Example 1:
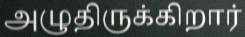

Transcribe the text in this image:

அழுதிருக்கிறார்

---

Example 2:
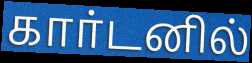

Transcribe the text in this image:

கார்டனில்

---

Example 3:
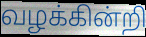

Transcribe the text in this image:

வழக்கின்றி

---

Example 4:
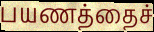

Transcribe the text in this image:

பயணத்தைச்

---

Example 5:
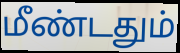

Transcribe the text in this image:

மீண்டதும்